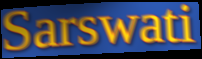
Sarswati